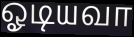
ஓடியவா